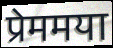
प्रेममया